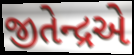
જીતેન્દ્રએ